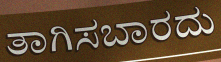
ತಾಗಿಸಬಾರದು